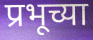
प्रभूच्या